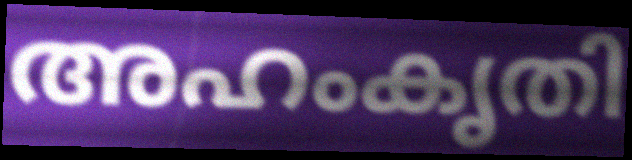
അഹംകൃതി